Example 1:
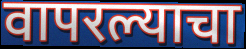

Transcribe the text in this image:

वापरल्याचा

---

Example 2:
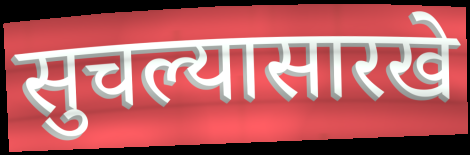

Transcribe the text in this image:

सुचल्यासारखे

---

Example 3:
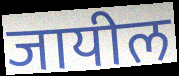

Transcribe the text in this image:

जायील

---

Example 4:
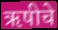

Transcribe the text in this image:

ऋषीचे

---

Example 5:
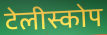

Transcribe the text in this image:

टेलीस्कोप